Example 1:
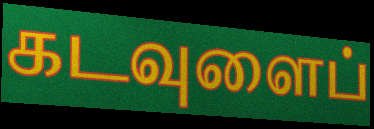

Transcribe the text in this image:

கடவுளைப்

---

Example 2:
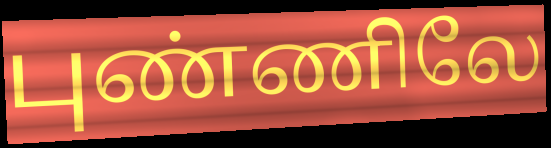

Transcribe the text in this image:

புண்ணிலே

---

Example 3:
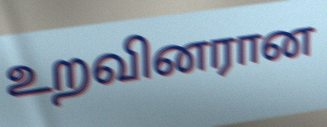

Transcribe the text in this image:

உறவினரான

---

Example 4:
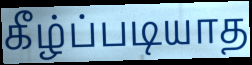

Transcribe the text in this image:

கீழ்ப்படியாத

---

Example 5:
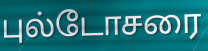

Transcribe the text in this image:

புல்டோசரை